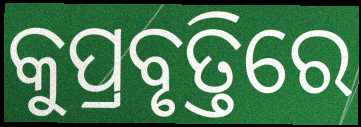
କୁପ୍ରବୃତ୍ତିରେ